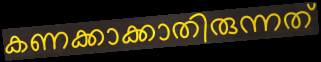
കണക്കാക്കാതിരുന്നത്